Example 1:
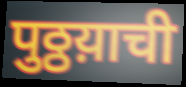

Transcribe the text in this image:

पुठ्ठय़ाची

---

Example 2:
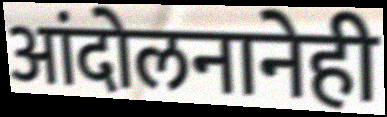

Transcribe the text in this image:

आंदोलनानेही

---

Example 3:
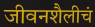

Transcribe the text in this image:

जीवनशैलीचं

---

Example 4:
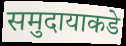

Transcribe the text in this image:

समुदायाकडे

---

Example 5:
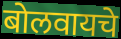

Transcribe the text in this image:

बोलवायचे